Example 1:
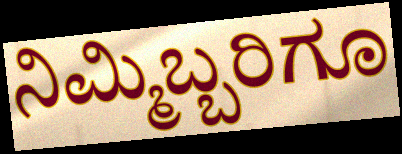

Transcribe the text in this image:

ನಿಮ್ಮಿಬ್ಬರಿಗೂ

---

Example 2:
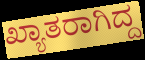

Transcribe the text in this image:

ಖ್ಯಾತರಾಗಿದ್ದ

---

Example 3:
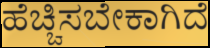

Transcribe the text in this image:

ಹೆಚ್ಚಿಸಬೇಕಾಗಿದೆ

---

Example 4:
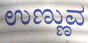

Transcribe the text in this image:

ಉಣ್ಣುವ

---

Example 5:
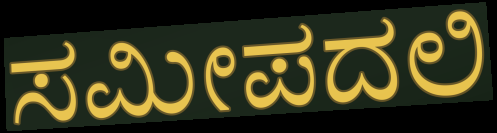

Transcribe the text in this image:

ಸಮೀಪದಲಿ